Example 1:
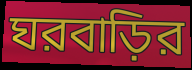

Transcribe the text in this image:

ঘরবাড়ির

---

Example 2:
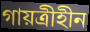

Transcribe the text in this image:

গায়ত্রীহীন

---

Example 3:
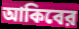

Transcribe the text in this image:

আকিবের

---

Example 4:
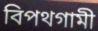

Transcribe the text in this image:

বিপথগামী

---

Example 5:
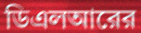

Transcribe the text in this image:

ডিএলআরের